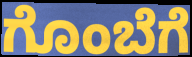
ಗೊಂಬೆಗೆ